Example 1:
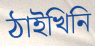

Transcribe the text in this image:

ঠাইখিনি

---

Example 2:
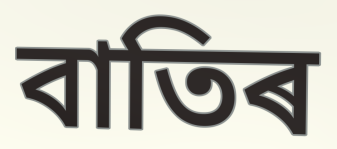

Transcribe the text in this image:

বাতিৰ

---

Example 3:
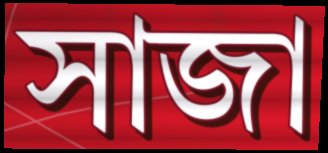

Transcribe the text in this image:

সাজা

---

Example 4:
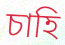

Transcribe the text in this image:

চাহি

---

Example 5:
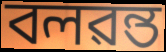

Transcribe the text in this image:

বলৱন্ত